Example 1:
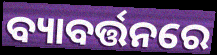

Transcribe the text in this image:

ବ୍ୟାବର୍ତ୍ତନରେ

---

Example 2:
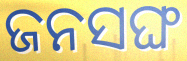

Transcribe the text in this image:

ଜନସଙ୍ଘ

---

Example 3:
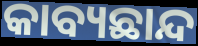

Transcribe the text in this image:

କାବ୍ୟଛାନ୍ଦ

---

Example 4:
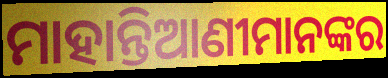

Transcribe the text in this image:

ମାହାନ୍ତିଆଣୀମାନଙ୍କର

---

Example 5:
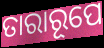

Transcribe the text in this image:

ତାରାରୂପେ